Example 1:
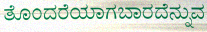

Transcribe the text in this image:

ತೊಂದರೆಯಾಗಬಾರದೆನ್ನುವ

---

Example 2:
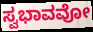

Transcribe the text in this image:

ಸ್ವಭಾವವೋ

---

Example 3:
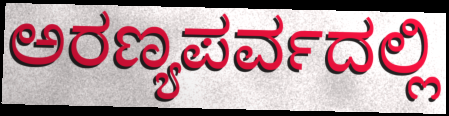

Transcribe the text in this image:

ಅರಣ್ಯಪರ್ವದಲ್ಲಿ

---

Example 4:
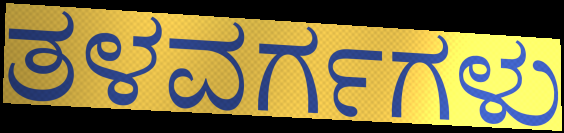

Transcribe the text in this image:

ತಳವರ್ಗಗಳು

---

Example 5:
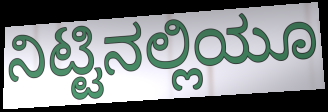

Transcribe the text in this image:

ನಿಟ್ಟಿನಲ್ಲಿಯೂ